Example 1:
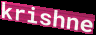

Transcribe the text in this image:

krishne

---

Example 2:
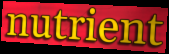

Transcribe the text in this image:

nutrient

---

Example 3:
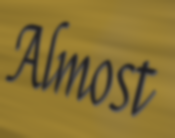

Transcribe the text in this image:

Almost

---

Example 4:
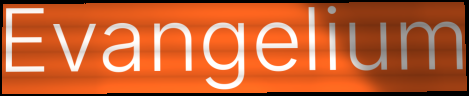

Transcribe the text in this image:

Evangelium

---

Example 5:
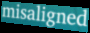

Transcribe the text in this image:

misaligned